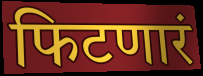
फिटणारं